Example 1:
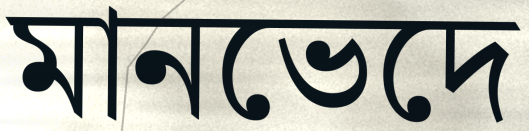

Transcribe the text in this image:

মানভেদে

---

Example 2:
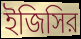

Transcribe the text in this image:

ইজিসির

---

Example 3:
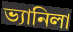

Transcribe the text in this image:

ভ্যানিলা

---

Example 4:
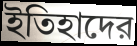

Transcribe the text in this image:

ইতিহাদের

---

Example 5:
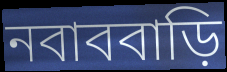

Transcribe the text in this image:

নবাববাড়ি